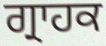
ਗ੍ਰਾਹਕ